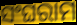
ସଂଘରାମ